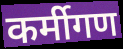
कर्मीगण